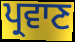
ਪ੍ਰਵਾਣ